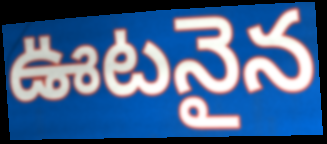
ఊటనైన